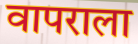
वापराला